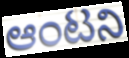
ಆಂಟನಿ